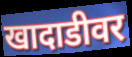
खादाडीवर